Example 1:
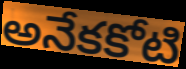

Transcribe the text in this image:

అనేకకోటి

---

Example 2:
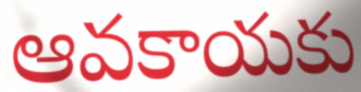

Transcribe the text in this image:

ఆవకాయకు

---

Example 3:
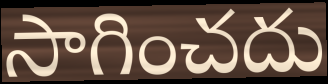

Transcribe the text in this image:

సాగించదు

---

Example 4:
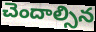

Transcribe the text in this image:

చెందాల్సిన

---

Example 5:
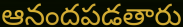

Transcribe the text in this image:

ఆనందపడతారు